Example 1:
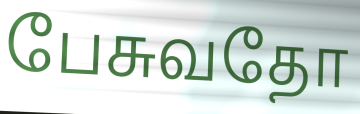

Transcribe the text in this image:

பேசுவதோ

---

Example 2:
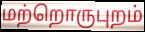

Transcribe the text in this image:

மற்றொருபுறம்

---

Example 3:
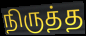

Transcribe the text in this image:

நிருத்த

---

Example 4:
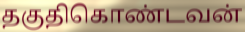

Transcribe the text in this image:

தகுதிகொண்டவன்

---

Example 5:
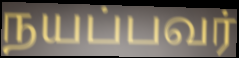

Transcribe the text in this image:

நயப்பவர்